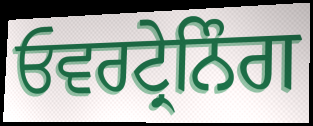
ਓਵਰਟ੍ਰੇਨਿੰਗ